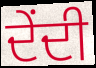
ਦੇਂਦੀ